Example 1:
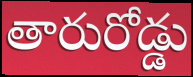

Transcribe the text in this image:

తారురోడ్డు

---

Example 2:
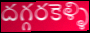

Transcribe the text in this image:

దగ్గరకెళ్ళి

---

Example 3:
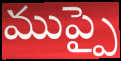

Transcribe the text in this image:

ముప్పై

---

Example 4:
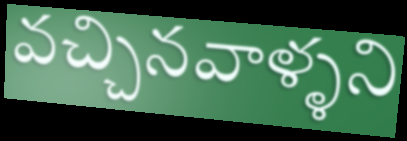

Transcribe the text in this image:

వచ్చినవాళ్ళని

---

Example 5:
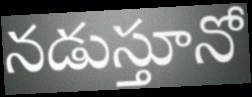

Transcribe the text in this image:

నడుస్తూనో